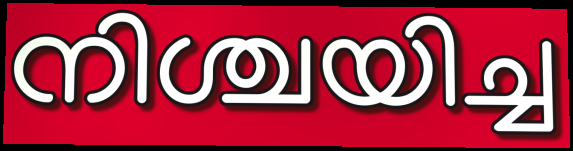
നിശ്ചയിച്ച